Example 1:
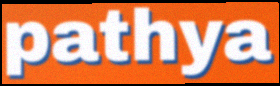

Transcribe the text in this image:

pathya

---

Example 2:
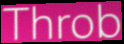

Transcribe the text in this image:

Throb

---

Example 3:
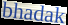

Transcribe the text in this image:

bhadak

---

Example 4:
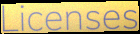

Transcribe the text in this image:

Licenses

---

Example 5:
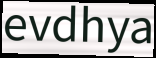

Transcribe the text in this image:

evdhya